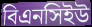
বিএনসিইউ